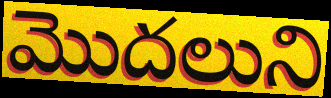
మొదలుని